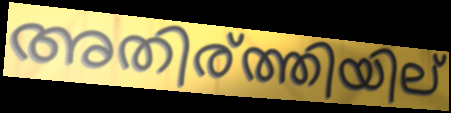
അതിര്ത്തിയില്